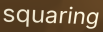
squaring